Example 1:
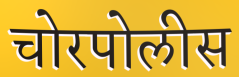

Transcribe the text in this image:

चोरपोलीस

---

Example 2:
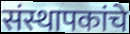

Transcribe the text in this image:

संस्थापकांचे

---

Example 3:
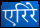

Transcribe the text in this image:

एरिरे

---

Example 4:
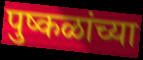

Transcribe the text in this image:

पुष्कळांच्या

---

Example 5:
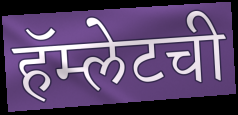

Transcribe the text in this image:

हॅम्लेटची